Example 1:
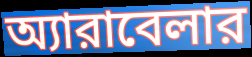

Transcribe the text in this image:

অ্যারাবেলার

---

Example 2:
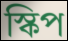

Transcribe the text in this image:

স্কিপ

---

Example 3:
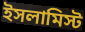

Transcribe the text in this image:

ইসলামিস্ট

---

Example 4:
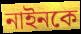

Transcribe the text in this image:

নাইনকে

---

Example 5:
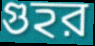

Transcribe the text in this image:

গুহর